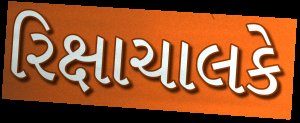
રિક્ષાચાલકે